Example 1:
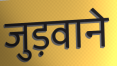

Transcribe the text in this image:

जुड़वाने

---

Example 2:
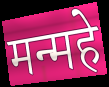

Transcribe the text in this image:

मन्महे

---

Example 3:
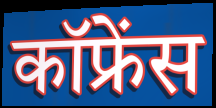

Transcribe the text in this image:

कॉफ्रेंस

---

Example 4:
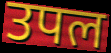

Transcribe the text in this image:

उपल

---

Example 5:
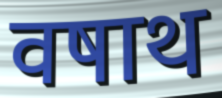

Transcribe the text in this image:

वषाथ